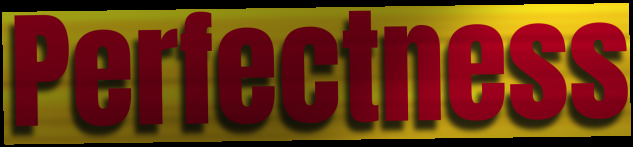
Perfectness